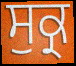
ਸੁਕ੍ਰ